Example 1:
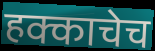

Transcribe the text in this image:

हक्काचेच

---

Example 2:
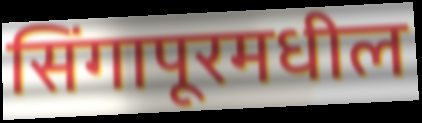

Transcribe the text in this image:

सिंगापूरमधील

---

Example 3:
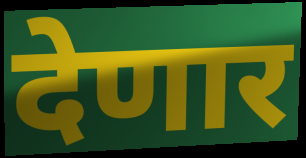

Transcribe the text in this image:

देणार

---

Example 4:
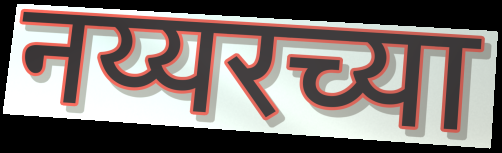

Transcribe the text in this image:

नय्यरच्या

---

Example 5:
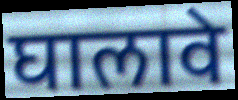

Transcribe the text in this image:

घालावे